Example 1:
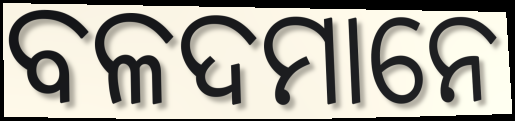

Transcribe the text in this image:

ବଳଦମାନେ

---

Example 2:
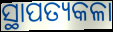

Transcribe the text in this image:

ସ୍ଥାପତ୍ୟକଳା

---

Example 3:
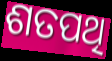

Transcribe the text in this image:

ଶତପଥି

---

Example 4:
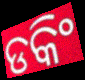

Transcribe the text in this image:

ଡକିଂ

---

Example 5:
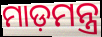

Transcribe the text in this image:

ମାଡ଼ମନ୍ତ୍ର